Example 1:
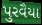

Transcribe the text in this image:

પુરવૈયા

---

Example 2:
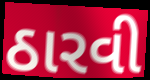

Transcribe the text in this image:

ઠારવી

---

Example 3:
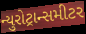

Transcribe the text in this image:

ન્યુરોટ્રાન્સમીટર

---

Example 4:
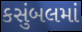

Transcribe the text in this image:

કસુંબલમાં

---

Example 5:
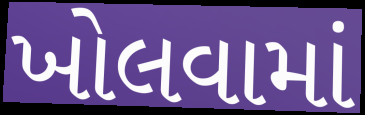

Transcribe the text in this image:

ખોલવામાં